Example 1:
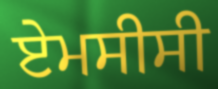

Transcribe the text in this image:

ਏਮਸੀਸੀ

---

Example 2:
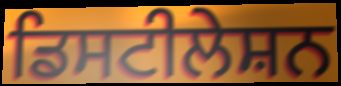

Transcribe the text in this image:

ਡਿਸਟੀਲੇਸ਼ਨ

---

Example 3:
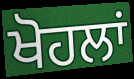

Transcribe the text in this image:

ਖੋਹਲਾਂ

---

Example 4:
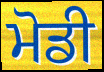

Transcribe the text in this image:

ਮੋਡੀ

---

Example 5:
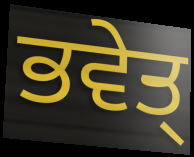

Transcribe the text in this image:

ਭਵੇਤ੍